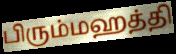
பிரும்மஹத்தி